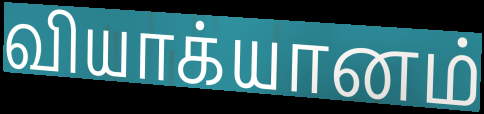
வியாக்யானம்